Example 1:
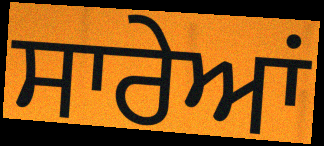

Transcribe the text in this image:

ਸਾਰੇਆਂ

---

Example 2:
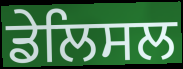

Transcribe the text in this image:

ਡੇਲਿਸਲ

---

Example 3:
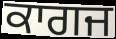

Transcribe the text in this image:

ਕਾਗਜ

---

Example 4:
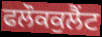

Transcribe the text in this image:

ਫਲੌਕਕੁਲੈਂਟ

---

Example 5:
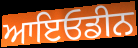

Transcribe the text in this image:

ਆਇਓਡੀਨ